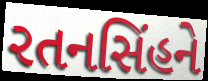
રતનસિંહને